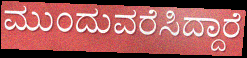
ಮುಂದುವರೆಸಿದ್ದಾರೆ